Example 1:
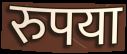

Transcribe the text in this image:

रुपया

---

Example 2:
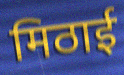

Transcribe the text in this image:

मिठाई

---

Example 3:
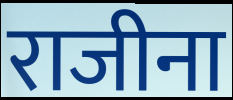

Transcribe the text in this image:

राजीना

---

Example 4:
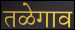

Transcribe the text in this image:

तळेगाव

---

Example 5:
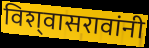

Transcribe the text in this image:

विश्वासरावांनी